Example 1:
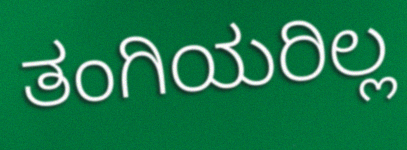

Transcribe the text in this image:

ತಂಗಿಯರಿಲ್ಲ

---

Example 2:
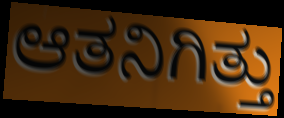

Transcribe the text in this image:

ಆತನಿಗಿತ್ತು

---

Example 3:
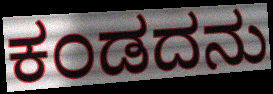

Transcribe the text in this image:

ಕಂಡದನು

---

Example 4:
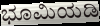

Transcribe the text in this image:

ಭೂಮಿಯಡಿ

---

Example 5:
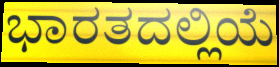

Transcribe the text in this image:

ಭಾರತದಲ್ಲಿಯೆ